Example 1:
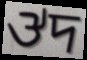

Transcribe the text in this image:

ঔদ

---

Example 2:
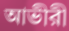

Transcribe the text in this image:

আভীরী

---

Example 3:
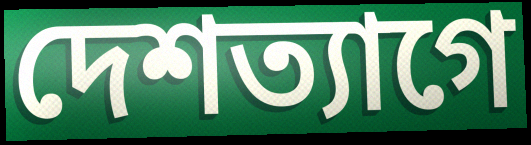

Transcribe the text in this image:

দেশত্যাগে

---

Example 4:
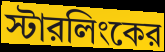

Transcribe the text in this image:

স্টারলিংকের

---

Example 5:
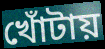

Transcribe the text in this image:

খোঁটায়